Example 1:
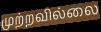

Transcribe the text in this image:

முற்றவில்லை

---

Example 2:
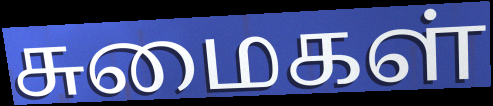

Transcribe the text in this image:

சுமைகள்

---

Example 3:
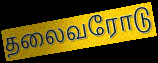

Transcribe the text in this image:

தலைவரோடு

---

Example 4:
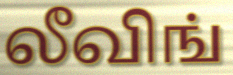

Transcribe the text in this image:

லீவிங்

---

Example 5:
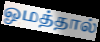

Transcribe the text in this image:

ஓமத்தால்